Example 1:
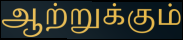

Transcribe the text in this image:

ஆற்றுக்கும்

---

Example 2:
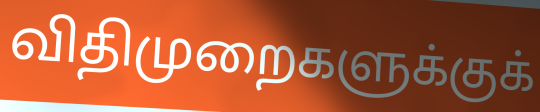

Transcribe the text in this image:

விதிமுறைகளுக்குக்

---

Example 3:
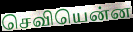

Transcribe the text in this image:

செவியென்ன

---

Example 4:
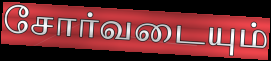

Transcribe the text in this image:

சோர்வடையும்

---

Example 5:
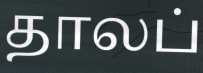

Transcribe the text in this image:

தாலப்